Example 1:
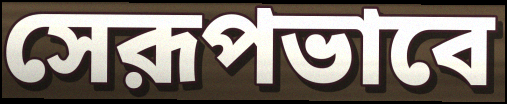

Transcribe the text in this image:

সেরূপভাবে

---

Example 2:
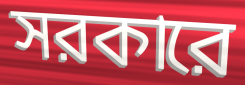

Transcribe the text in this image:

সরকারে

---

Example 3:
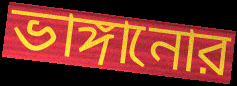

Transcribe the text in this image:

ভাঙ্গানোর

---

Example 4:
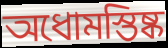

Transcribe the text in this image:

অধোমস্তিষ্ক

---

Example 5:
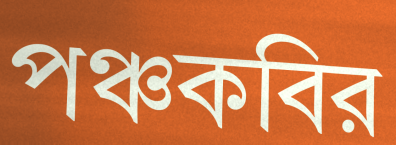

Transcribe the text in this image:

পঞ্চকবির